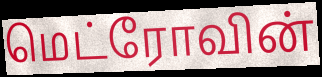
மெட்ரோவின்